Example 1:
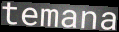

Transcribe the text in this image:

temana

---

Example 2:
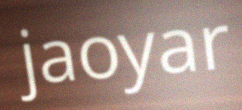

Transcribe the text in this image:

jaoyar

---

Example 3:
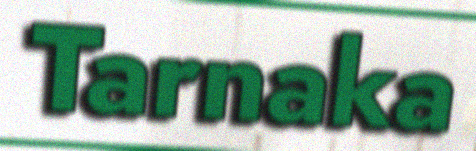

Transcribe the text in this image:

Tarnaka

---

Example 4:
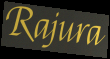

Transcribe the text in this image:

Rajura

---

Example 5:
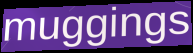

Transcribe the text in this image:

muggings